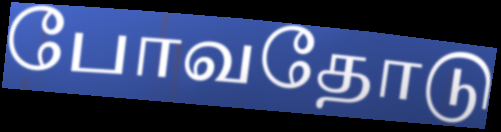
போவதோடு